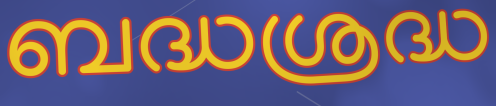
ബദ്ധശ്രദ്ധ